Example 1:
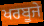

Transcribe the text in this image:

ਖਰਬੂਜੇ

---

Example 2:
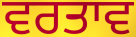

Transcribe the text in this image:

ਵਰਤਾਵ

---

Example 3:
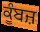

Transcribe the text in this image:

ਕੂੰਬਜ਼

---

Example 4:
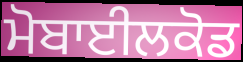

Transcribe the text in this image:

ਮੋਬਾਈਲਕੋਡ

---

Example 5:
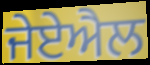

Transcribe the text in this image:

ਜੇਏਐਲ